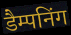
डैम्पनिंग